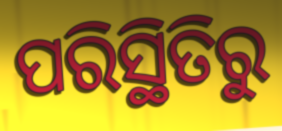
ପରିସ୍ଥିତିରୁ